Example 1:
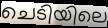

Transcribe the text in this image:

ചെടിയിലെ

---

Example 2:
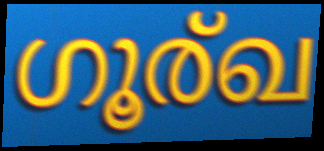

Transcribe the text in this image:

ഗൂര്ഖ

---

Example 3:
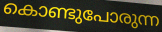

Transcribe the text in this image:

കൊണ്ടുപോരുന്ന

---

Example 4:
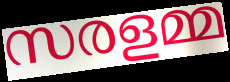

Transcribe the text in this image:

സരളമ്മ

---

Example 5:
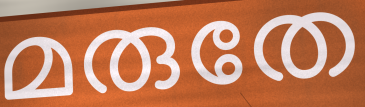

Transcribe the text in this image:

മരുതേ